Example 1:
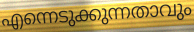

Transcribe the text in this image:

എന്നെടുക്കുന്നതാവും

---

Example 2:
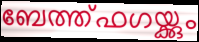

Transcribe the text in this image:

ബേത്ത്ഫഗയ്ക്കും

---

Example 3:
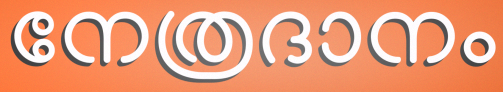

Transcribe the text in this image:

നേത്രദാനം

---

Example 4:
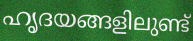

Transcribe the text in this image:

ഹൃദയങ്ങളിലുണ്ട്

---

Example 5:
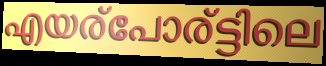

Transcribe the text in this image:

എയര്പോര്ട്ടിലെ